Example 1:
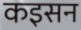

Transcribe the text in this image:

कइसन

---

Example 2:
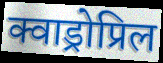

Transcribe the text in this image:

क्वाड्रोप्रिल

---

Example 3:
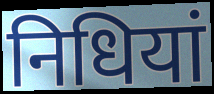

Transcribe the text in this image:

निधियां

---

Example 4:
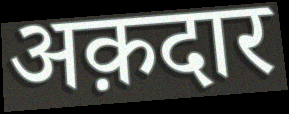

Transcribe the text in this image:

अक़दार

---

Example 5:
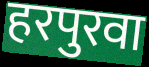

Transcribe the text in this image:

हरपुरवा